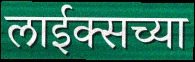
लाईक्सच्या